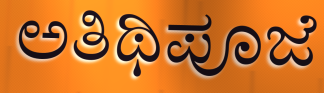
ಅತಿಥಿಪೂಜೆ